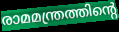
രാമമന്ത്രത്തിന്റെ